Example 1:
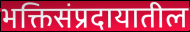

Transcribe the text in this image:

भक्तिसंप्रदायातील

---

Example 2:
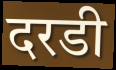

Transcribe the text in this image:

दरडी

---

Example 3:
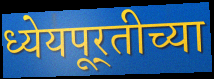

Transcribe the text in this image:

ध्येयपूर्तीच्या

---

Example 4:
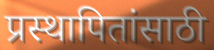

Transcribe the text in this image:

प्रस्थापितांसाठी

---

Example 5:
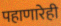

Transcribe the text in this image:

पहाणारेही